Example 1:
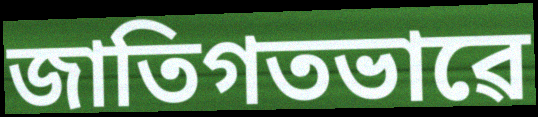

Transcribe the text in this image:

জাতিগতভাৱে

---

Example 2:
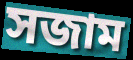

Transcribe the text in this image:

সজাম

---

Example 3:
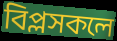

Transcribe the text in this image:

বিপ্লসকলে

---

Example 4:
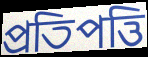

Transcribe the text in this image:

প্ৰতিপত্তি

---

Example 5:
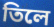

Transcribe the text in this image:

তিলে